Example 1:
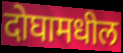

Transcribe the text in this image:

दोघामधील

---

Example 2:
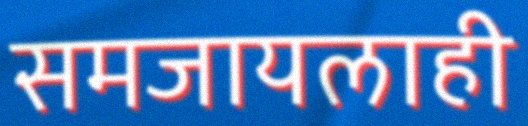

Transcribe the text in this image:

समजायलाही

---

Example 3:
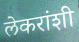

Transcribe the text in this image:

लेकरांशी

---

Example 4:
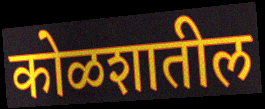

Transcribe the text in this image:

कोळशातील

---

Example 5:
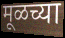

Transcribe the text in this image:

मूळच्या